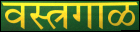
वस्त्रगाळ